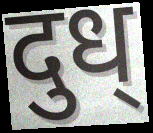
दुध्